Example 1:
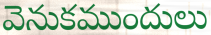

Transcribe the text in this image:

వెనుకముందులు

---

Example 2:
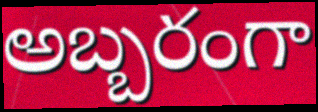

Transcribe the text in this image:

అబ్బరంగా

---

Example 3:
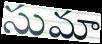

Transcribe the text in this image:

సుమా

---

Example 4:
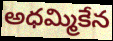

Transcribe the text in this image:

అధమ్మికేన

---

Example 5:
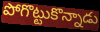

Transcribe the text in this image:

పోగొట్టుకొన్నాడు